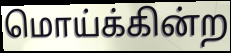
மொய்க்கின்ற